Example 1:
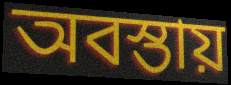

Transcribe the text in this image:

অবস্তায়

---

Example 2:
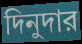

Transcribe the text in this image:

দিনুদার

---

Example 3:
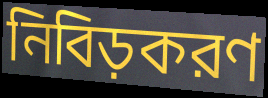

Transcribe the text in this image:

নিবিড়করণ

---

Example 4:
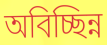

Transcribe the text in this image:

অবিচ্ছিন্ন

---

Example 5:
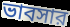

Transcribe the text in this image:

ভাবসার